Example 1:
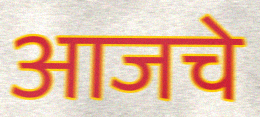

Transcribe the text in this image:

आजचे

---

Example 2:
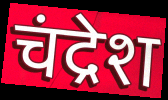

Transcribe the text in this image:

चंद्रेश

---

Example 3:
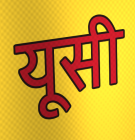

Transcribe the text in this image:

यूसी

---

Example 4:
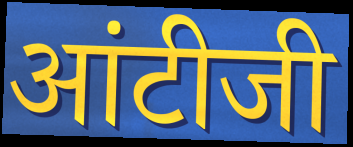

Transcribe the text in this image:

आंटीजी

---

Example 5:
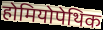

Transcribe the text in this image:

होमियोपेथिक